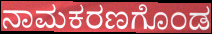
ನಾಮಕರಣಗೊಂಡ